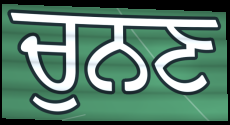
ਚੁਨਣ